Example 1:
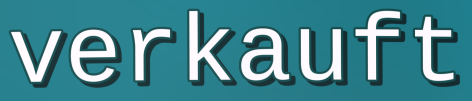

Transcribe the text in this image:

verkauft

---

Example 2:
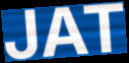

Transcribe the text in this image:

JAT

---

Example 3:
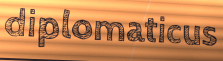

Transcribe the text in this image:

diplomaticus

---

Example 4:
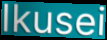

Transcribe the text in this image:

Ikusei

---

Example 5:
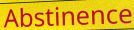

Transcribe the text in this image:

Abstinence